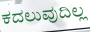
ಕದಲುವುದಿಲ್ಲ